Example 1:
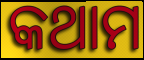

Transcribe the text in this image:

କଥାମ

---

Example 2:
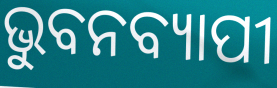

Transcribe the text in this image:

ଭୁବନବ୍ୟାପୀ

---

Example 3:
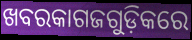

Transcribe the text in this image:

ଖବରକାଗଜଗୁଡ଼ିକରେ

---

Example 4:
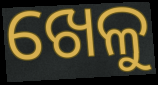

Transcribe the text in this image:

ଖେଳୁ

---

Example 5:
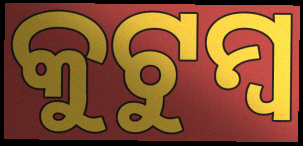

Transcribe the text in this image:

କୁଟୁମ୍ୱ